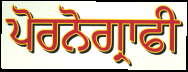
ਪੋਰਨੋਗ੍ਰਾਫੀ